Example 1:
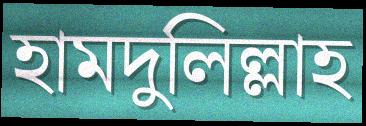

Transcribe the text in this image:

হামদুলিল্লাহ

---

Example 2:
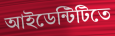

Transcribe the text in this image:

আইডেন্টিটিতে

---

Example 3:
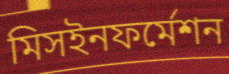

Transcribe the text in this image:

মিসইনফর্মেশন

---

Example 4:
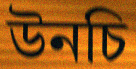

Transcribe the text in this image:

উনচি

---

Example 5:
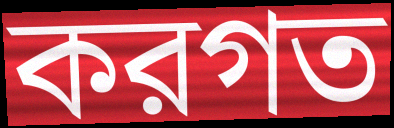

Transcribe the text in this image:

করগত